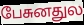
பேசுனதுல